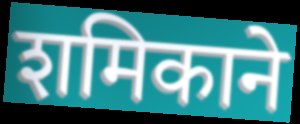
शमिकाने